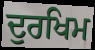
ਦੁਰਖਿਮ